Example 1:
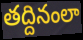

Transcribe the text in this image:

తద్దినంలా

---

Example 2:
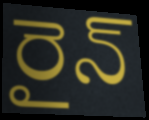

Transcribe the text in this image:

రైన్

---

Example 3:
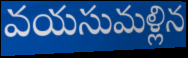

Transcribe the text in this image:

వయసుమళ్లిన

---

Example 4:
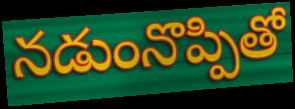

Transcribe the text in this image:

నడుంనొప్పితో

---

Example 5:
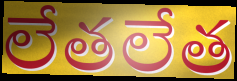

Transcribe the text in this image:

లేతలేత